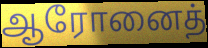
ஆரோனைத்